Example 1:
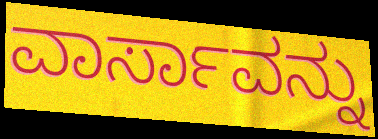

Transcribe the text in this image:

ವಾರ್ಸಾವನ್ನು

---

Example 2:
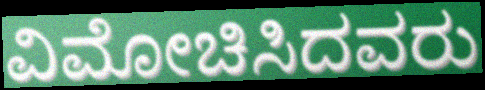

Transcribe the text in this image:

ವಿಮೋಚಿಸಿದವರು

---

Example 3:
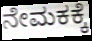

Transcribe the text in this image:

ನೇಮಕಕ್ಕೆ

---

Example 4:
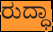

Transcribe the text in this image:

ರುದ್ಧಾ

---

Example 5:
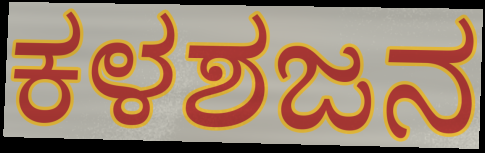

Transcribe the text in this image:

ಕಳಶಜನ